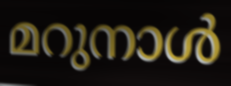
മറുനാൾ